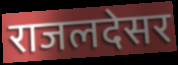
राजलदेसर